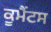
ਕੂਮੈਂਟਸ